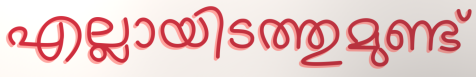
എല്ലായിടത്തുമുണ്ട്